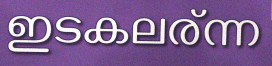
ഇടകലര്ന്ന